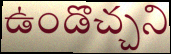
ఉండొచ్చని